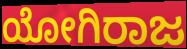
ಯೋಗಿರಾಜ